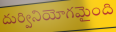
దుర్వినియోగమైంది